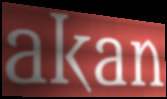
akan